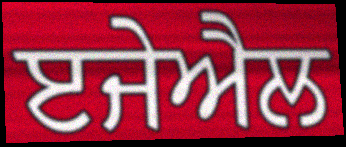
ੲਜੇਐਲ